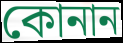
কোনান